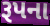
રૂપના